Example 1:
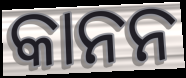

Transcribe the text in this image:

କାନନ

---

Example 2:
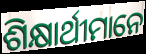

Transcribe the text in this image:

ଶିକ୍ଷାର୍ଥୀମାନେ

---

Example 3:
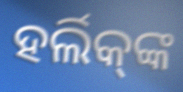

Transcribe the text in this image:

ହର୍ଲିକ୍‌ଙ୍କ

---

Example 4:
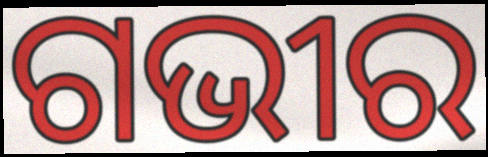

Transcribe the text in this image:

ଗଭୀର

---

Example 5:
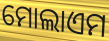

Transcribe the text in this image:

ମୋଲାଏମ